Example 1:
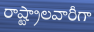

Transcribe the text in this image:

రాష్ట్రాలవారీగా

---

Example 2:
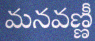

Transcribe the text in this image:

మనవణ్ణీ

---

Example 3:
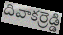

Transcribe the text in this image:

దివాకర్రెడ్డి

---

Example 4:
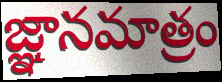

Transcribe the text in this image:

జ్ఞానమాత్రం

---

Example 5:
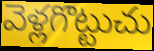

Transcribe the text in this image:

వెళ్లగొట్టుచు